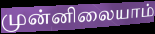
முன்னிலையாம்